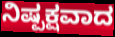
ನಿಷ್ಪಕ್ಷವಾದ